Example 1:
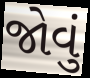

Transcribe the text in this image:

જોવું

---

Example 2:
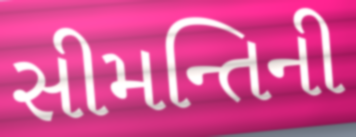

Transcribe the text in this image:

સીમન્તિની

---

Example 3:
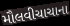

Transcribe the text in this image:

મૌલવીચાચાના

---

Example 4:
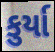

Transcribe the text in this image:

કુર્યા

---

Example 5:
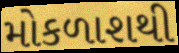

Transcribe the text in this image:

મોકળાશથી